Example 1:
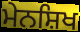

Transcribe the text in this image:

ਮੇਨਸ਼ਿਖ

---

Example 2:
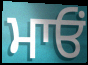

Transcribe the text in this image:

ਮਾਓਂ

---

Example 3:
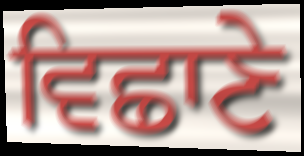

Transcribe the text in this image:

ਵਿਛਾਣੇ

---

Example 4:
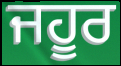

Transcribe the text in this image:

ਜਹੂਰ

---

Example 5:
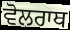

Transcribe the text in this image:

ਵੋਲਰਾਥ